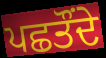
ਪਛਤੌਂਦੇ